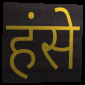
हंसे